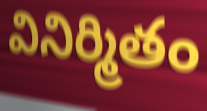
వినిర్మితం